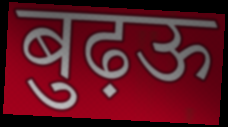
बुढ़ऊ